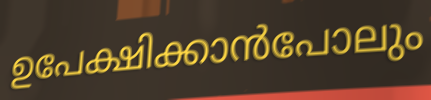
ഉപേക്ഷിക്കാൻപോലും